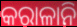
କରାଳାନି